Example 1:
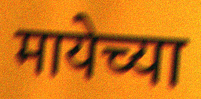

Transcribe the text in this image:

मायेच्या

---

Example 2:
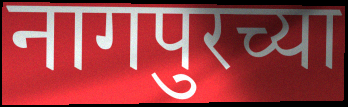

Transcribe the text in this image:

नागपुरच्या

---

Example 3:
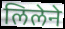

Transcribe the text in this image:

लिलेने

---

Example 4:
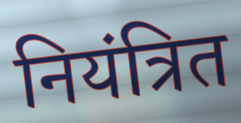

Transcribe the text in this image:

नियंत्रित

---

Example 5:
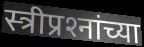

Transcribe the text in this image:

स्त्रीप्रश्नांच्या